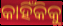
କାହିଁକିକୁ